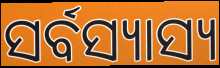
ସର୍ବସ୍ୟାସ୍ୟ